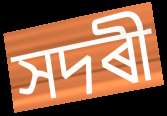
সদৰী